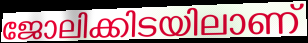
ജോലിക്കിടയിലാണ്